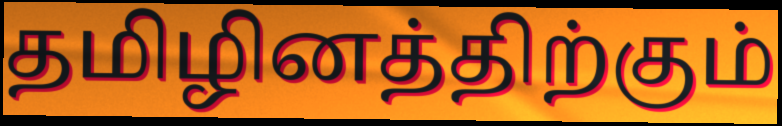
தமிழினத்திற்கும்